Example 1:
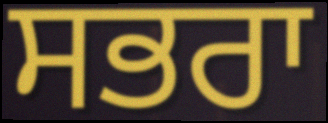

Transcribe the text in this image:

ਸਭਰਾ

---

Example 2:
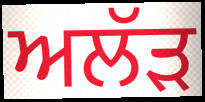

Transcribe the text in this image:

ਅਲੱੜ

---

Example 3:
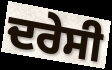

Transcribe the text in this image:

ਦਰੇਸੀ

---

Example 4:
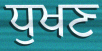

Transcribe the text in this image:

ਧੁਖਣ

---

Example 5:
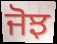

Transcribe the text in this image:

ਜੋਝ